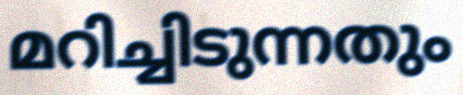
മറിച്ചിടുന്നതും